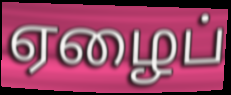
ஏழைப்